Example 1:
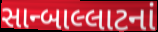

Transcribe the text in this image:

સાન્બાલ્લાટનાં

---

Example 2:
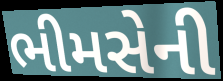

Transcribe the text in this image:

ભીમસેની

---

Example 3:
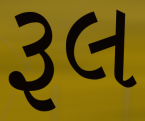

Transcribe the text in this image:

રૂલ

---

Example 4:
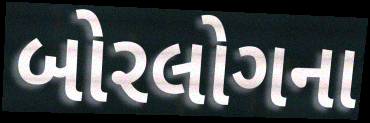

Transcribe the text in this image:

બોરલોગના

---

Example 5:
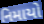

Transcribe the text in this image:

નિમાયો